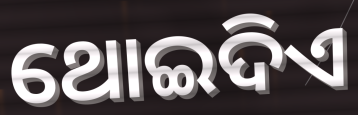
ଥୋଇଦିଏ